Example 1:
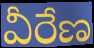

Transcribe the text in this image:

వీరేణ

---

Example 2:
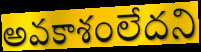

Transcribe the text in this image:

అవకాశంలేదని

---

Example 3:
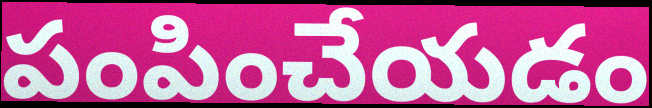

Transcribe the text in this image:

పంపించేయడం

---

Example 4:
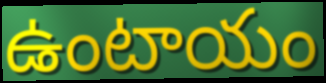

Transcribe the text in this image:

ఉంటాయం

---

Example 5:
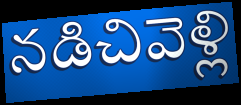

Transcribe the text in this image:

నడిచివెళ్లి